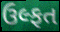
ઉલ્ફત